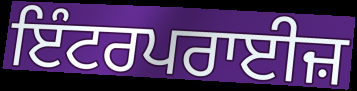
ਇੰਟਰਪਰਾਈਜ਼